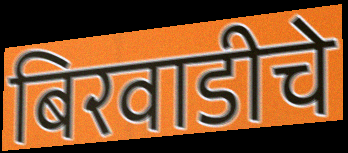
बिरवाडीचे